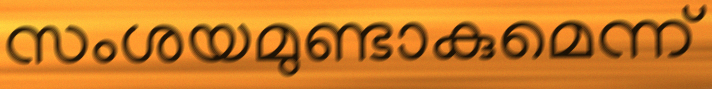
സംശയമുണ്ടാകുമെന്ന്